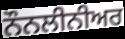
ਨੌਨਲੀਨੀਅਰ